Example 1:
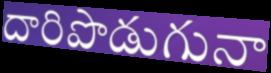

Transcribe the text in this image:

దారిపొడుగునా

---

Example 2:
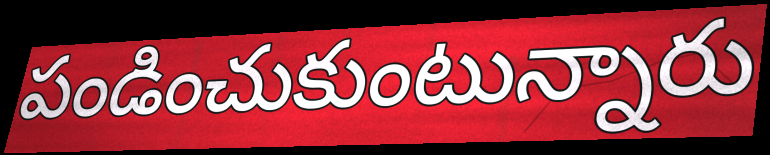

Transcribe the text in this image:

పండించుకుంటున్నారు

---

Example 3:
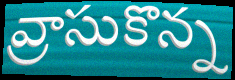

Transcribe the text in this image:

వ్రాసుకొన్న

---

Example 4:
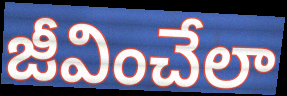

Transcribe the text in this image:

జీవించేలా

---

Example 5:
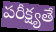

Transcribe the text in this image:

పరీక్ష్యతే